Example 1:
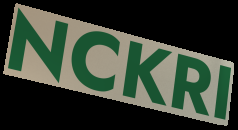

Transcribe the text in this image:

NCKRI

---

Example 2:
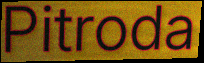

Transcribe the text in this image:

Pitroda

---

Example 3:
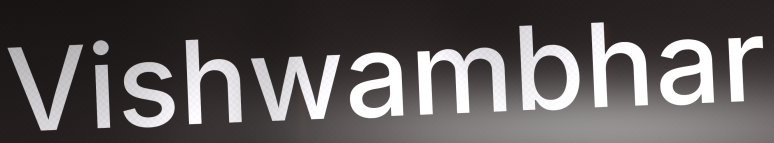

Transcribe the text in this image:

Vishwambhar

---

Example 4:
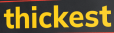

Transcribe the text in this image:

thickest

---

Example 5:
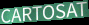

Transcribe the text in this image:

CARTOSAT